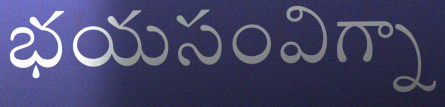
భయసంవిగ్నా